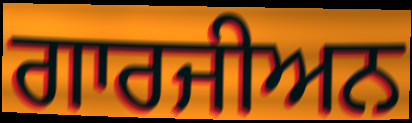
ਗਾਰਜੀਅਨ